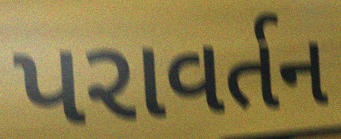
પરાવર્તન